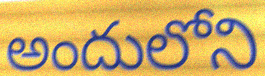
అందులోని